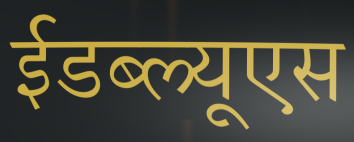
ईडब्ल्यूएस